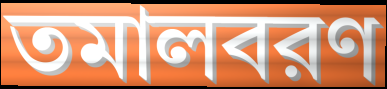
তমালবরণ